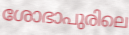
ശോഭാപുരിലെ